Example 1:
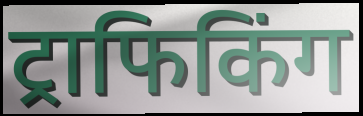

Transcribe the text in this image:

ट्राफिकिंग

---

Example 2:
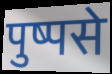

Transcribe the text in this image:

पुष्पसे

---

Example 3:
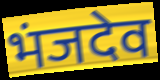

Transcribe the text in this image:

भंजदेव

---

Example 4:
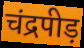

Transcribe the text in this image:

चंद्रपीड़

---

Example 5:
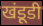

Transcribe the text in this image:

खंडूडी